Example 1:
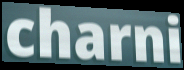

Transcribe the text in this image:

charni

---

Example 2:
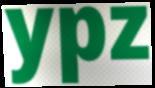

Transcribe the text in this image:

ypz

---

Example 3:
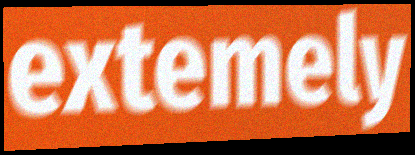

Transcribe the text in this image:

extemely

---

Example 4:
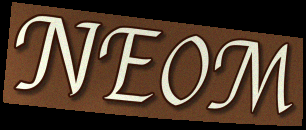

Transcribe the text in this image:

NEOM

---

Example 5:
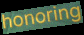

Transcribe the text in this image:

honoring